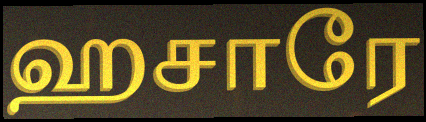
ஹசாரே